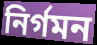
নির্গমন